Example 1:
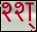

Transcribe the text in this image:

श्श्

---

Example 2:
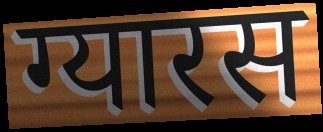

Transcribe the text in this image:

ग्यारस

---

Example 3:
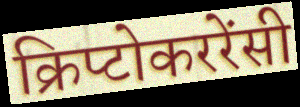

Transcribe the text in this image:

क्रिप्टोकररेंसी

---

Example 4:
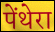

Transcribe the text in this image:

पेंथेरा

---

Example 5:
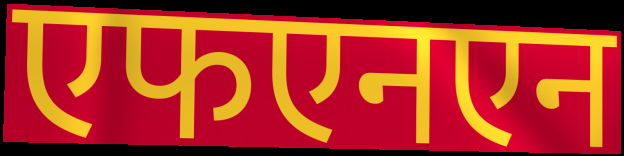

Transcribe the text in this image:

एफएनएन